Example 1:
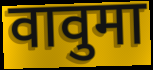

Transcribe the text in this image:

वावुमा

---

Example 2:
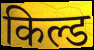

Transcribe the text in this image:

किल्ड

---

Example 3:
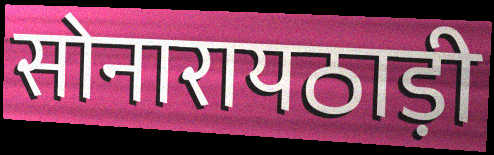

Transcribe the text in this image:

सोनारायठाड़ी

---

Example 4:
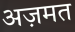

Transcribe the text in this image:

अज़मत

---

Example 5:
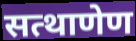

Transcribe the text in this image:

सत्थाणेण